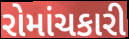
રોમાંચકારી